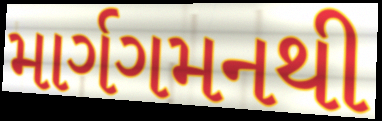
માર્ગગમનથી